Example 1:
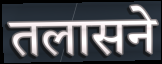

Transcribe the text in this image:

तलासने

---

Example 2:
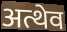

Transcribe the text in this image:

अत्थेव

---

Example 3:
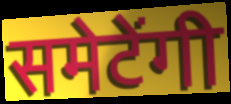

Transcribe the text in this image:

समेटेंगी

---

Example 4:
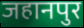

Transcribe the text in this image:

जहानपुर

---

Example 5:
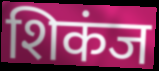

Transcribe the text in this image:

शिकंज